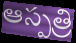
ఆస్పత్రి